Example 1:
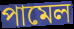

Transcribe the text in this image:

পামেল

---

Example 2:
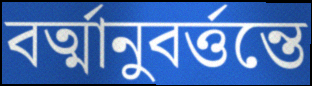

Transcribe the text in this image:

বর্ত্মানুবর্ত্তন্তে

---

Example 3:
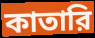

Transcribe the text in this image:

কাতারি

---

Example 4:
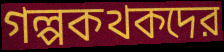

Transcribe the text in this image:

গল্পকথকদের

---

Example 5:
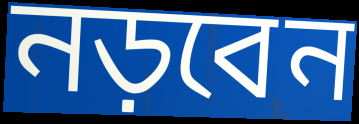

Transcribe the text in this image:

নড়বেন